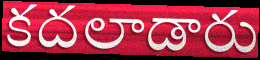
కదలాడారు